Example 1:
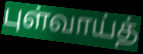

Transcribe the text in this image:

புள்வாய்த்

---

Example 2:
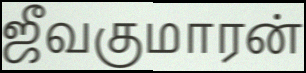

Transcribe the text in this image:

ஜீவகுமாரன்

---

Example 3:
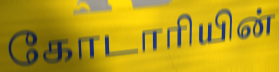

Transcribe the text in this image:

கோடாரியின்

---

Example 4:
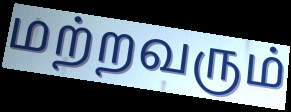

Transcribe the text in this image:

மற்றவரும்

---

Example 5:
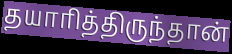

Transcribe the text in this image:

தயாரித்திருந்தான்